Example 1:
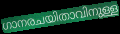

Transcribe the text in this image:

ഗാനരചയിതാവിനുള്ള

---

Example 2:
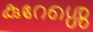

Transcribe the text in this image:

കുറേശ്ശെ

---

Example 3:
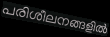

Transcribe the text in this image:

പരിശീലനങ്ങളിൽ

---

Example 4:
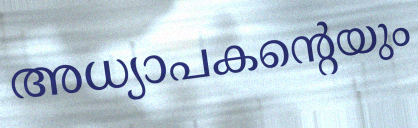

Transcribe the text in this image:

അധ്യാപകന്റെയും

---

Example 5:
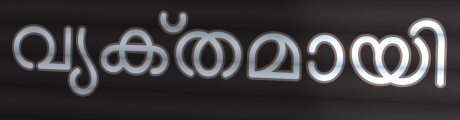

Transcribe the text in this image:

വ്യക്‌തമായി